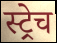
स्ट्रेच